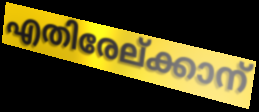
എതിരേല്ക്കാന്